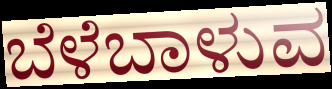
ಬೆಳೆಬಾಳುವ